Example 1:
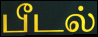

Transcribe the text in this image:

பீடல்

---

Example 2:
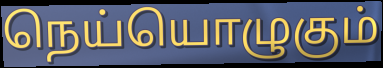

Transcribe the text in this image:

நெய்யொழுகும்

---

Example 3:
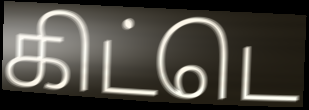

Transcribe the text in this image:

கிட்டெ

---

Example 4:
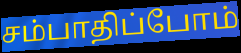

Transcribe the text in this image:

சம்பாதிப்போம்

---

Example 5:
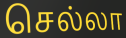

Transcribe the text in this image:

செல்லா